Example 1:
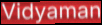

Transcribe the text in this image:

Vidyaman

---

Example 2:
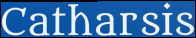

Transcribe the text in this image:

Catharsis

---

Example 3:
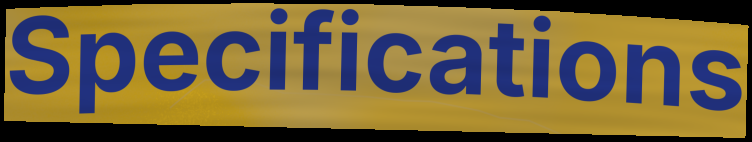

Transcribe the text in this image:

Specifications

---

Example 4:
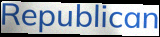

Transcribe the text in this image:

Republican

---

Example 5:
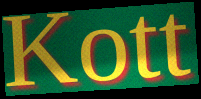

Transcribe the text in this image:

Kott